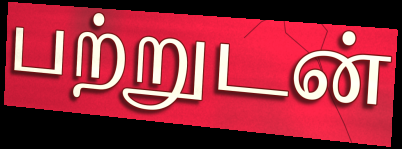
பற்றுடன்